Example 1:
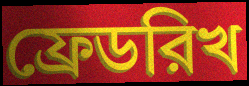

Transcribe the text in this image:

ফ্রেডরিখ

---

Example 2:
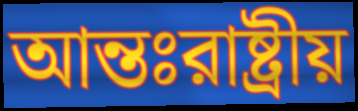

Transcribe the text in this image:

আন্তঃরাষ্ট্রীয়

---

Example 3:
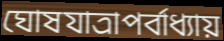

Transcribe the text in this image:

ঘোষযাত্রাপর্বাধ্যায়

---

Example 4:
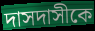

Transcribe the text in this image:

দাসদাসীকে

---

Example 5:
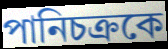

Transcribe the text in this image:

পানিচক্রকে